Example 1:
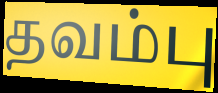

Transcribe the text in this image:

தவம்பு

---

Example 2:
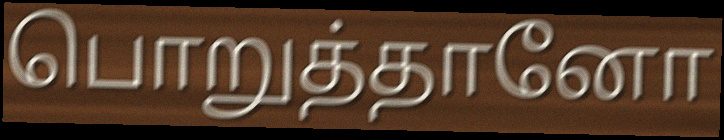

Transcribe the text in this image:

பொறுத்தானோ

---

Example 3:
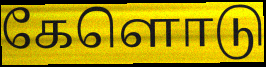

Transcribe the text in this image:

கேளொடு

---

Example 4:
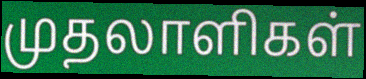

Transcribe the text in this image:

முதலாளிகள்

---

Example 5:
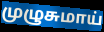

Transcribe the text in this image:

முழுசுமாய்